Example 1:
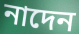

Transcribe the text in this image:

নাদেন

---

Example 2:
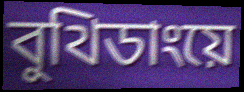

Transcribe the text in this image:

বুথিডাংয়ে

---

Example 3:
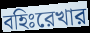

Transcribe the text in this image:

বহিঃরেখার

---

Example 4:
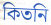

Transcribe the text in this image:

কিতনি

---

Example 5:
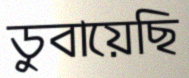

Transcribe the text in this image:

ডুবায়েছি